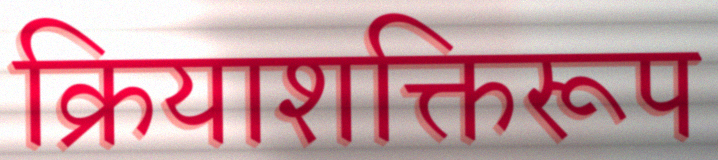
क्रियाशक्तिरूप